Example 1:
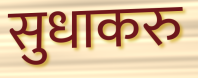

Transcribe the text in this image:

सुधाकरु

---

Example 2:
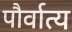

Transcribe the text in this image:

पौर्वात्य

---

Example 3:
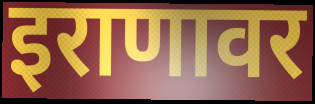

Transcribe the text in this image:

इराणावर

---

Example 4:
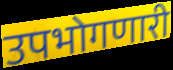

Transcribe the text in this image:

उपभोगणारी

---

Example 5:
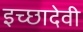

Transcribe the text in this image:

इच्छादेवी